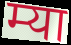
म्या